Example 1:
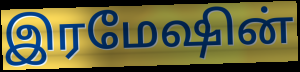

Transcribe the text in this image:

இரமேஷின்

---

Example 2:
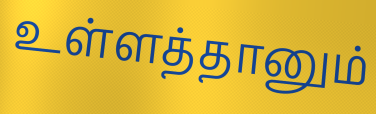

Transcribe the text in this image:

உள்ளத்தானும்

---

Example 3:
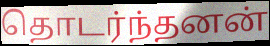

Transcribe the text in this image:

தொடர்ந்தனன்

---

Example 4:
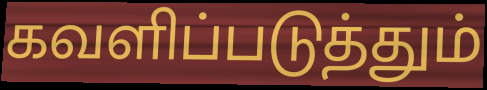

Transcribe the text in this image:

கவளிப்படுத்தும்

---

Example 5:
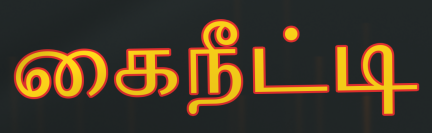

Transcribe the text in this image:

கைநீட்டி